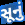
સૂનું